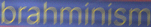
brahminism